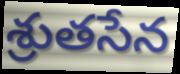
శ్రుతసేన